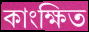
কাংক্ষিত